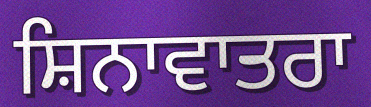
ਸ਼ਿਨਾਵਾਤਰਾ